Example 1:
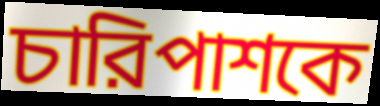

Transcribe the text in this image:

চারিপাশকে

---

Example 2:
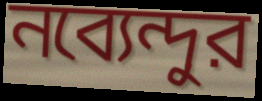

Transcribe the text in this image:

নব্যেন্দুর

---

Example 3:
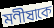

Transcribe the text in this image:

মণীষাকে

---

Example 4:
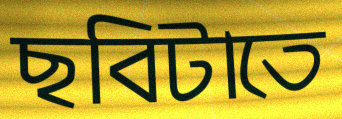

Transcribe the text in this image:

ছবিটাতে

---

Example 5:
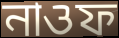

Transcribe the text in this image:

নাওফ